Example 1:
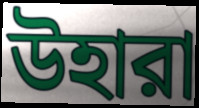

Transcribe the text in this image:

উহারা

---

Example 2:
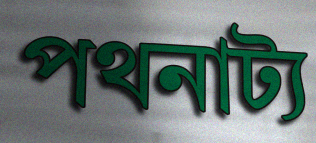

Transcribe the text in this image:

পথনাট্য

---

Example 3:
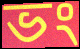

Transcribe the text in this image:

ভং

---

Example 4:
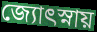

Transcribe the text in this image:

জ্যোৎস্নায়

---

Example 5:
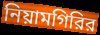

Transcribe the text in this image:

নিয়ামগিরির